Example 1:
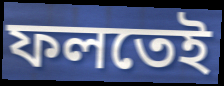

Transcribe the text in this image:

ফলতেই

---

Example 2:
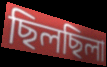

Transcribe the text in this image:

ছিলছিলা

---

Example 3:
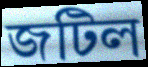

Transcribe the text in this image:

জটিল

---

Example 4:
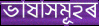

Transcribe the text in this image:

ভাষাসমূহৰ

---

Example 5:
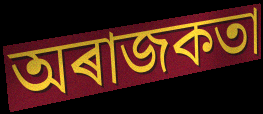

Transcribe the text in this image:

অৰাজকতা